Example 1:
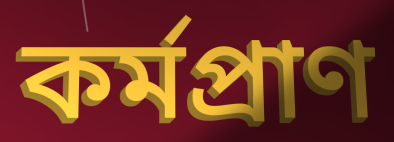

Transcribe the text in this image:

কর্মপ্রাণ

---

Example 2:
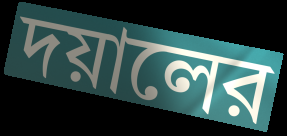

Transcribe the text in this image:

দয়ালের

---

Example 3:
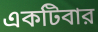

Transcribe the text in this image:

একটিবার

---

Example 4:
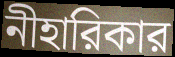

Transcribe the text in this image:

নীহারিকার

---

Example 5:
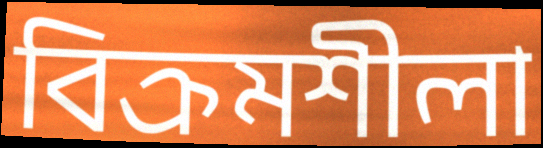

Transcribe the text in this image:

বিক্রমশীলা